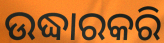
ଉଦ୍ଧାରକରି